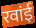
रवांई